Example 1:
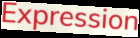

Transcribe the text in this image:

Expression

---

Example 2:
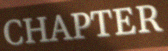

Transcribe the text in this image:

CHAPTER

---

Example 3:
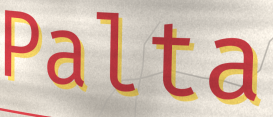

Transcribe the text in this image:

Palta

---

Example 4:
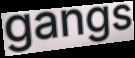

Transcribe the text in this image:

gangs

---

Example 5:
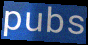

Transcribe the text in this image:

pubs